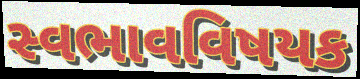
સ્વભાવવિષયક